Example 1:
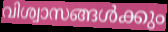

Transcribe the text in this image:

വിശ്വാസങ്ങൾക്കും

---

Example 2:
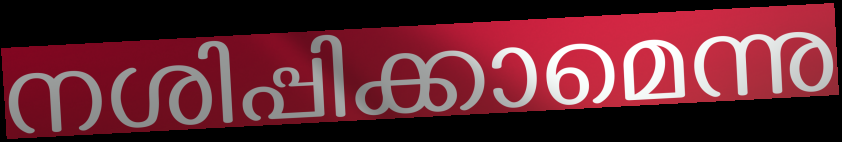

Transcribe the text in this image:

നശിപ്പിക്കാമെന്നു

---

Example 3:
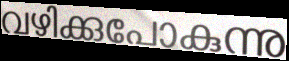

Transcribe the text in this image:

വഴിക്കുപോകുന്നു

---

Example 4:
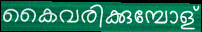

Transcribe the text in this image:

കൈവരിക്കുമ്പോള്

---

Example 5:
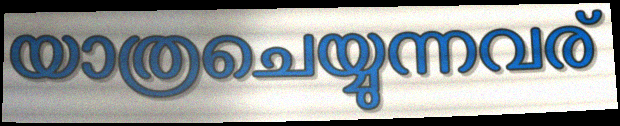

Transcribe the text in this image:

യാത്രചെയ്യുന്നവര്